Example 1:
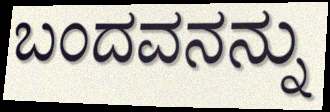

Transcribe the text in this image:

ಬಂದವನನ್ನು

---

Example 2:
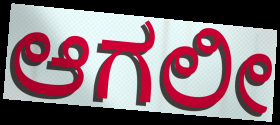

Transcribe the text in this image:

ಆಗಲೀ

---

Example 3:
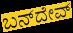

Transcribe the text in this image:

ಬನ್‌ದೇವ್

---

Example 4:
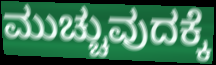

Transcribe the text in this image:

ಮುಚ್ಚುವುದಕ್ಕೆ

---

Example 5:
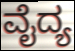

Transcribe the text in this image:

ವೈದ್ಯ